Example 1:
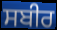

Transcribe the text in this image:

ਸਬੀਰ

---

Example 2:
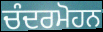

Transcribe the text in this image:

ਚੰਦਰਮੋਹਨ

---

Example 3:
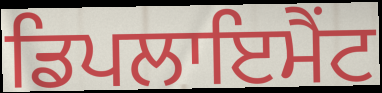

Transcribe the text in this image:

ਡਿਪਲਾਇਮੈਂਟ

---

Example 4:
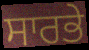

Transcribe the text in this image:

ਸਾਰਭੇ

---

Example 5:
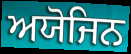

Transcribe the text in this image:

ਅਯੋਜਿਨ